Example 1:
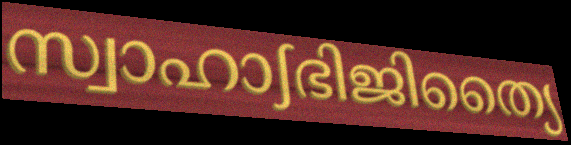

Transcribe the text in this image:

സ്വാഹാഽഭിജിത്യൈ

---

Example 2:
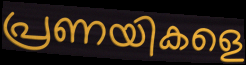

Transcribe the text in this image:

പ്രണയികളെ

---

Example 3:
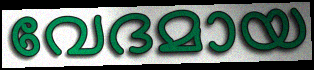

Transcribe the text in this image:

വേദമായ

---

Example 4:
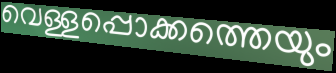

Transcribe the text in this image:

വെള്ളപ്പൊക്കത്തെയും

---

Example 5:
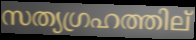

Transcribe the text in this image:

സത്യഗ്രഹത്തില്